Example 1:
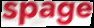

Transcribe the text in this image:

spage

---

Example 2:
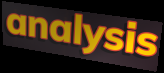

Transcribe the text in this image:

analysis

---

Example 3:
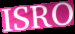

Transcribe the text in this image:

ISRO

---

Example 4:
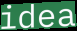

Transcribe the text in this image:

idea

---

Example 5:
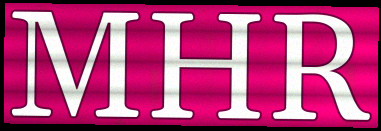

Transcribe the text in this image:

MHR